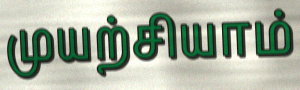
முயற்சியாம்